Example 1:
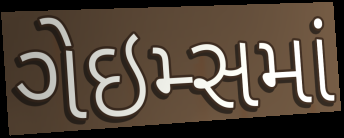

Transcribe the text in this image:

ગેઇમ્સમાં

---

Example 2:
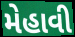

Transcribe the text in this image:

મેહાવી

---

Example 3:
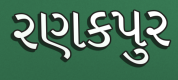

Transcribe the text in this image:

રણકપુર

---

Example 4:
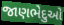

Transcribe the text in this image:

જાણભેદુઓ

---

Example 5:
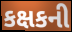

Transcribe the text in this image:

કક્ષકની